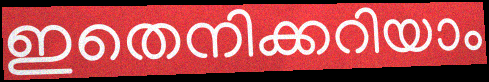
ഇതെനിക്കറിയാം